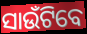
ସାଉଁଟିବେ